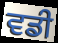
ਵਡੀ